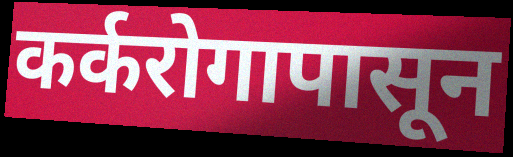
कर्करोगापासून